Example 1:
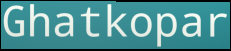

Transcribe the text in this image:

Ghatkopar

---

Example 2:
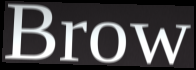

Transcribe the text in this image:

Brow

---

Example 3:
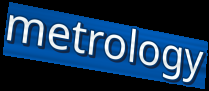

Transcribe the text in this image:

metrology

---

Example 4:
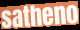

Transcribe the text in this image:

satheno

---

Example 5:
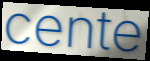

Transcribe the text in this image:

cente